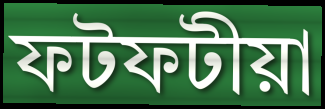
ফটফটীয়া